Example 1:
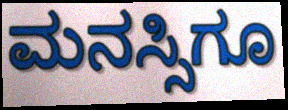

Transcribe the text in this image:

ಮನಸ್ಸಿಗೂ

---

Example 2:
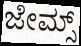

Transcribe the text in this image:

ಜೇಮ್ಸ್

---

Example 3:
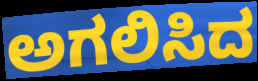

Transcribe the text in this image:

ಅಗಲಿಸಿದ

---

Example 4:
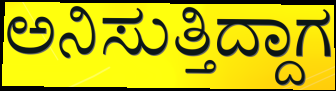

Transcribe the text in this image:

ಅನಿಸುತ್ತಿದ್ದಾಗ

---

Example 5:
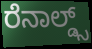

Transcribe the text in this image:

ರೆನಾಲ್ಡ್ಸ್